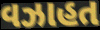
વઝાહત